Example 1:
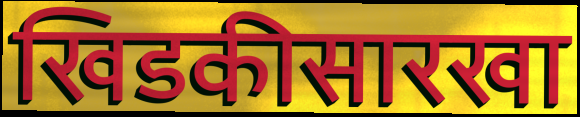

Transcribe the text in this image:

खिडकीसारखा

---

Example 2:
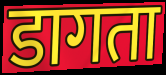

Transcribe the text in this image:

डागता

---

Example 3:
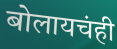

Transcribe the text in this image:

बोलायचंही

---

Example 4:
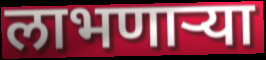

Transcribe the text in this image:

लाभणार्‍या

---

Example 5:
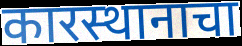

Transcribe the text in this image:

कारस्थानाचा